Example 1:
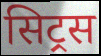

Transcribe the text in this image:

सिट्रस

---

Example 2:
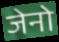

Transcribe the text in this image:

जेनो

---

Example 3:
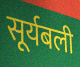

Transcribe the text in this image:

सूर्यबली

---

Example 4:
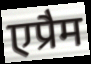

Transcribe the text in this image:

एप्रैम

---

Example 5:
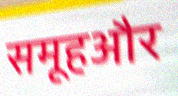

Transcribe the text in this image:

समूहऔर